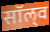
सॉल्व